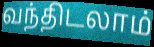
வந்திடலாம்